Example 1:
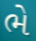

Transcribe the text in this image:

ભે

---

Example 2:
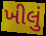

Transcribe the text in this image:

ખીલું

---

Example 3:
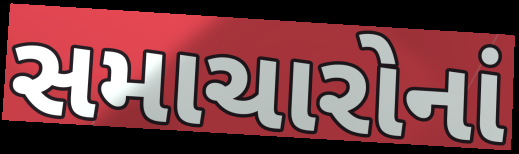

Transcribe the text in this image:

સમાચારોનાં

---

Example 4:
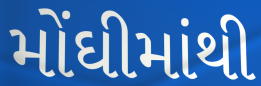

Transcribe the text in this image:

મોંઘીમાંથી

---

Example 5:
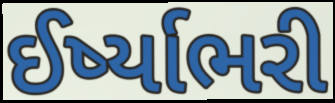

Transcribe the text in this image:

ઈર્ષ્યાભરી